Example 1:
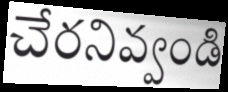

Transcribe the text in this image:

చేరనివ్వండి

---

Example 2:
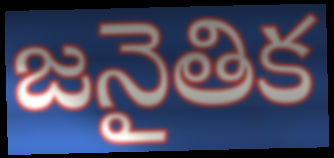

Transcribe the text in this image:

జనైతిక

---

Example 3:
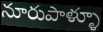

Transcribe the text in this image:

నూరుపాళ్ళూ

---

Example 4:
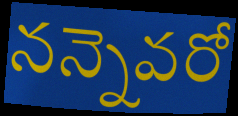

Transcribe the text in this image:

నన్నెవరో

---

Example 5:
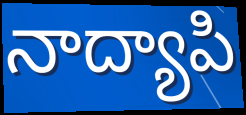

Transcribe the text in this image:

నాద్యాపి